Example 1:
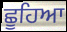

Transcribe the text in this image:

ਛੂਹਿਆ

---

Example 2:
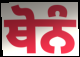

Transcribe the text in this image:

ਥੋਨੰ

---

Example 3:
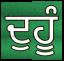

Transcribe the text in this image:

ਦੁਹੂੰ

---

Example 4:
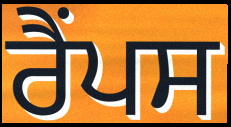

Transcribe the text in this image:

ਰੈਂਪਸ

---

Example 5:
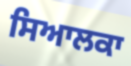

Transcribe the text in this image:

ਸਿਆਲਕਾ